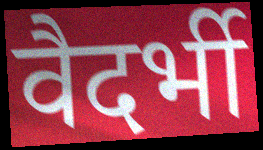
वैदर्भी